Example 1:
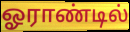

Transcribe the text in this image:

ஓராண்டில்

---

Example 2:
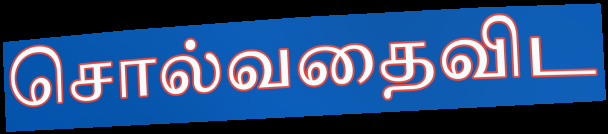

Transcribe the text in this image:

சொல்வதைவிட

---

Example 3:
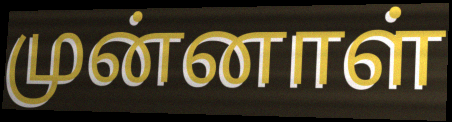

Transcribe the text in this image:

முன்னாள்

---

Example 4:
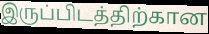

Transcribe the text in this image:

இருப்பிடத்திற்கான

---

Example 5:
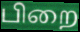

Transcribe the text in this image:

பிறை